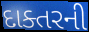
દાક્તરની